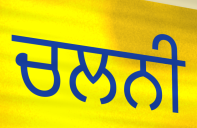
ਚਲਨੀ